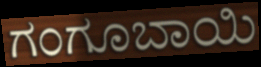
ಗಂಗೂಬಾಯಿ